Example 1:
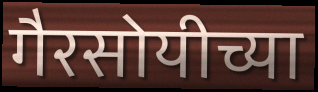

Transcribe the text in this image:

गैरसोयीच्या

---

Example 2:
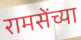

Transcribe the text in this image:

रामसेंच्या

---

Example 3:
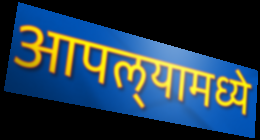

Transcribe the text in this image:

आपल्यामध्ये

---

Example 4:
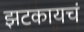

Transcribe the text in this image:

झटकायचं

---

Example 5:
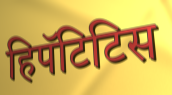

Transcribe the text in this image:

हिपॅटिटिस